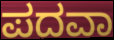
ಪದವಾ